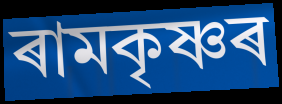
ৰামকৃষ্ণৰ